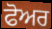
ਫੋਅਰ